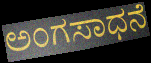
ಅಂಗಸಾಧನೆ